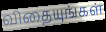
விதையுங்கள்